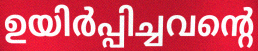
ഉയിർപ്പിച്ചവന്റെ